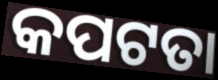
କପଟତା